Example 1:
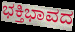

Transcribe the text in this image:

ಭಕ್ತಿಭಾವದ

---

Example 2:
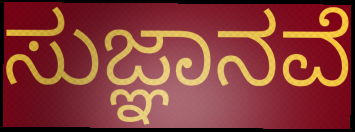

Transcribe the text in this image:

ಸುಜ್ಞಾನವೆ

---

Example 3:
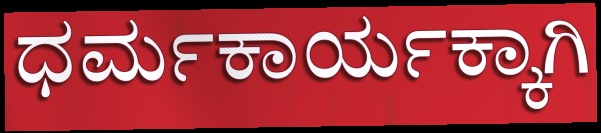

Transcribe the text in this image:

ಧರ್ಮಕಾರ್ಯಕ್ಕಾಗಿ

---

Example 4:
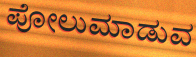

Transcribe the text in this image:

ಪೋಲುಮಾಡುವ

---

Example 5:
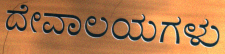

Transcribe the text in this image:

ದೇವಾಲಯಗಳು